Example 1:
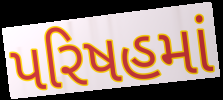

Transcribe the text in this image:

પરિષહમાં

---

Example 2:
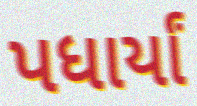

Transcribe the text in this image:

પધાર્યાં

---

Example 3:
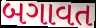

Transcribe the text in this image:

બગાવત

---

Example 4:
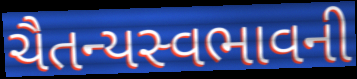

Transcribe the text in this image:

ચૈતન્યસ્વભાવની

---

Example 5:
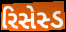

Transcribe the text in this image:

રિસેસ્ડ